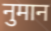
नुमान